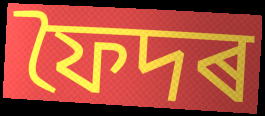
ফৈদৰ